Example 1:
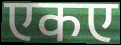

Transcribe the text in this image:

एकए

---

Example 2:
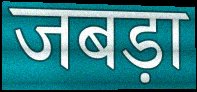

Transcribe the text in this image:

जबड़ा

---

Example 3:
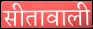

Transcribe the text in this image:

सीतावाली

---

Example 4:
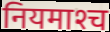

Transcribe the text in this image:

नियमाश्च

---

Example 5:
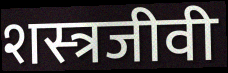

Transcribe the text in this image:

शस्त्रजीवी